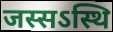
जस्सऽस्थि